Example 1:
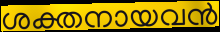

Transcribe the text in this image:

ശക്തനായവൻ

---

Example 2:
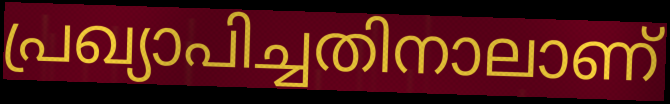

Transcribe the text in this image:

പ്രഖ്യാപിച്ചതിനാലാണ്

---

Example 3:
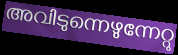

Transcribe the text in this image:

അവിടുന്നെഴുന്നേറ്റു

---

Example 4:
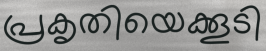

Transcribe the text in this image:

പ്രകൃതിയെക്കൂടി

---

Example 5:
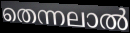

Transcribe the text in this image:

തെന്നലാൽ